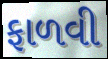
ફાળવી